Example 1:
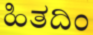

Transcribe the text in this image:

ಹಿತದಿಂ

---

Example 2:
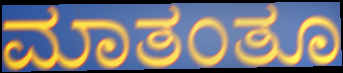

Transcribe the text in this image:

ಮಾತಂತೂ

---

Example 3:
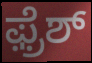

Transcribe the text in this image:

ಫ಼್ರೆಶ್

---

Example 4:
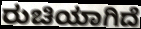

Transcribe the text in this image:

ರುಚಿಯಾಗಿದೆ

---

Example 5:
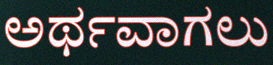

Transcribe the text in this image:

ಅರ್ಥವಾಗಲು